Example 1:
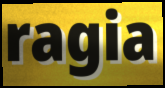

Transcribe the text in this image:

ragia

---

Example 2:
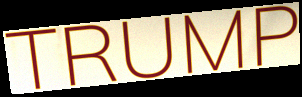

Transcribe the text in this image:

TRUMP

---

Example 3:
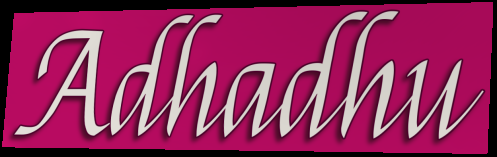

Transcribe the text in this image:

Adhadhu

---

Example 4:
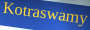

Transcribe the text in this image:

Kotraswamy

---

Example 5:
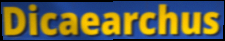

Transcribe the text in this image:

Dicaearchus